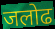
जलोढ